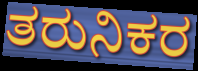
ತರುನಿಕರ